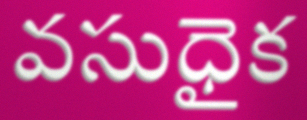
వసుధైక